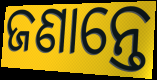
ଜଣାନ୍ତେ